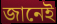
জানেই